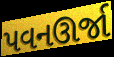
પવનઊર્જા